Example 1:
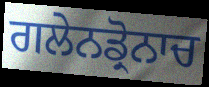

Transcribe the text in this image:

ਗਲੇਨਡ੍ਰੋਨਾਚ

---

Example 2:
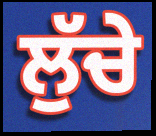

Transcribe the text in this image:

ਲੁੱਚੇ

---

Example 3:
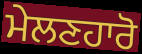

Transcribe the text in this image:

ਮੇਲਣਹਾਰੋ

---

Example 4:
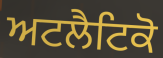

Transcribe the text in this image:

ਅਟਲੈਟਿਕੋ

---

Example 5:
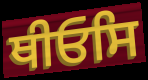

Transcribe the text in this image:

ਥੀਓਸਿ